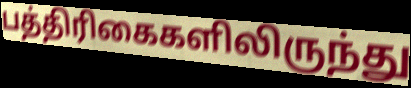
பத்திரிகைகளிலிருந்து